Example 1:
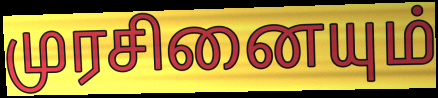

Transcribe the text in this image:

முரசினையும்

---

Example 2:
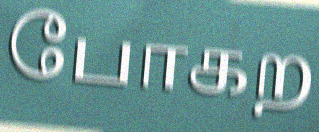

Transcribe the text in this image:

போகற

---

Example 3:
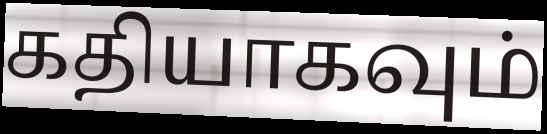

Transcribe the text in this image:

கதியாகவும்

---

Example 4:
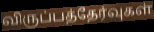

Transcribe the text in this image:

விருப்பத்தேர்வுகள்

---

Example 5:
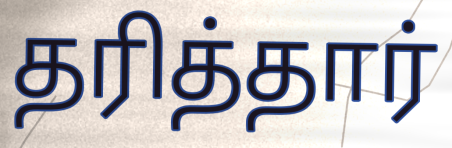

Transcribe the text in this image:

தரித்தார்